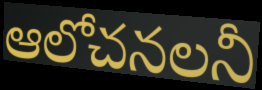
ఆలోచనలనీ